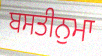
ਬਸਤੀਨੁਮਾ